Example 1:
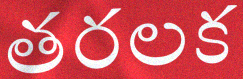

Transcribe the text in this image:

తరలక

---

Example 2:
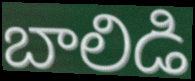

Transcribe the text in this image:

బాలిడి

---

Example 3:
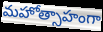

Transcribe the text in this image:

మహోత్సాహంగా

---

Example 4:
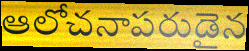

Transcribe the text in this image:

ఆలోచనాపరుడైన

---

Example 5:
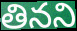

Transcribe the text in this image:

తినని